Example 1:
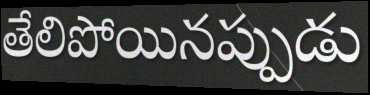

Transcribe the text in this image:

తేలిపోయినప్పుడు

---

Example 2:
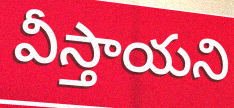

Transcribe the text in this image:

వీస్తాయని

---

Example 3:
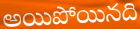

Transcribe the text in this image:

అయిపోయినది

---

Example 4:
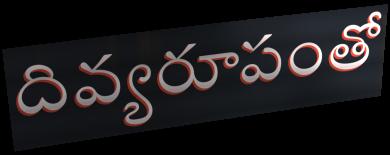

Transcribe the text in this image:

దివ్యరూపంతో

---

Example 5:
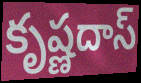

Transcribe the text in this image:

కృష్ణదాస్